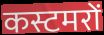
कस्टमरों